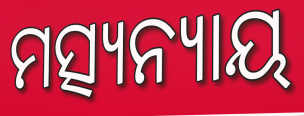
ମତ୍ସ୍ୟନ୍ୟାୟ